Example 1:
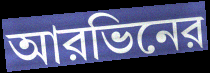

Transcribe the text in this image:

আরভিনের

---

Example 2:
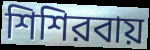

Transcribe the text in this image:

শিশিরবায়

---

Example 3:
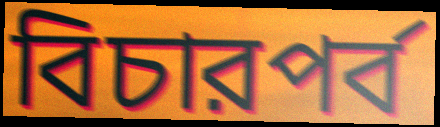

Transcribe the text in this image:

বিচারপর্ব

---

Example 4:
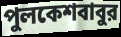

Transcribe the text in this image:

পুলকেশবাবুর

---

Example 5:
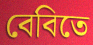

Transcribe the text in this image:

বেবিতে